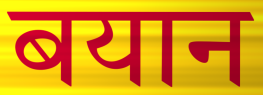
बयान